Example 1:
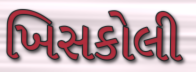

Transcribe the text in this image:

ખિસકોલી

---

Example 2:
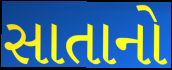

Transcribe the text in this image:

સાતાનો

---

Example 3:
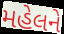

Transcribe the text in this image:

મહેલને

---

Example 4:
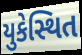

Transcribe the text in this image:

યુકેસ્થિત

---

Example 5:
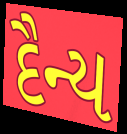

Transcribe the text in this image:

દૈન્ય